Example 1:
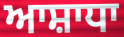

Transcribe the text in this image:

ਆਸ਼ਾਧਾ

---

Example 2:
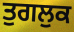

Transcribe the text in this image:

ਤੁਗਲੁਕ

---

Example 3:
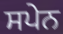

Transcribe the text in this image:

ਸਪੇਨ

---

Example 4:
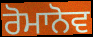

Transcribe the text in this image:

ਰੋਮਾਨੋਵ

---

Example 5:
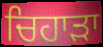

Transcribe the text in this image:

ਚਿਹਾੜਾ